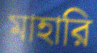
মাহারি